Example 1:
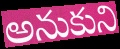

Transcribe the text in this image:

అనుకుని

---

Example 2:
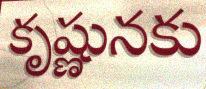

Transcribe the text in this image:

కృష్ణునకు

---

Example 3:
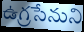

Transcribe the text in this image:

ఉగ్రసేనుని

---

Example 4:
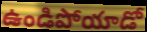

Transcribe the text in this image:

ఉండిపోయాడో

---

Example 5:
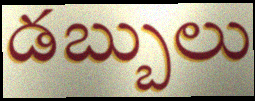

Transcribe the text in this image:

డబ్బులు